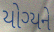
યોગ્યને